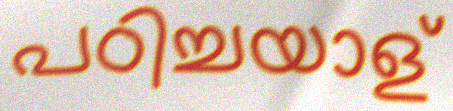
പഠിച്ചയാള്